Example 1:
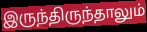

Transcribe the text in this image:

இருந்திருந்தாலும்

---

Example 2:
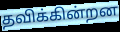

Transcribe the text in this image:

தவிக்கின்றன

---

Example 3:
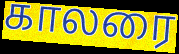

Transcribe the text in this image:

காலரை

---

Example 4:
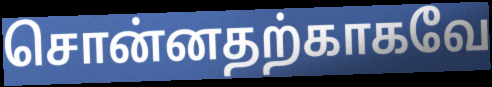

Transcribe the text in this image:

சொன்னதற்காகவே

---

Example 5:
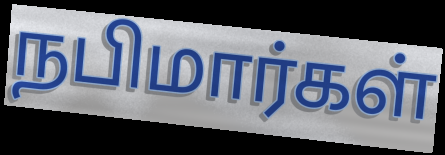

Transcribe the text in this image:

நபிமார்கள்